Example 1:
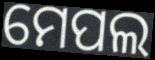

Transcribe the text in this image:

ମେପଲ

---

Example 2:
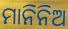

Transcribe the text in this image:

ମାନିନିଅ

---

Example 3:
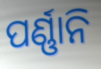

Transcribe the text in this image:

ପର୍ଣ୍ଣାନି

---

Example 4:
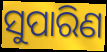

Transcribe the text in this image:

ସୁପାରିଣ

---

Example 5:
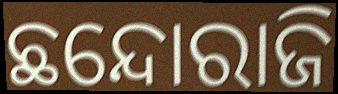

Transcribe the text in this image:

ଛନ୍ଦୋରାଜି